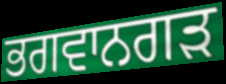
ਭਗਵਾਨਗੜ